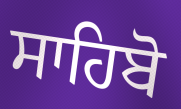
ਸਾਹਿਬੋ